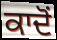
ਕਾਦੋਂ